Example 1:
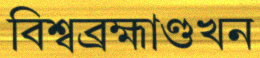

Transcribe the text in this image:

বিশ্বব্ৰহ্মাণ্ডখন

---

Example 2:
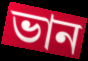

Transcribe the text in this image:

ভান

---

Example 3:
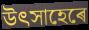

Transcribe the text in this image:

উৎসাহেৰে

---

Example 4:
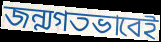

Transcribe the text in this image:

জন্মগতভাবেই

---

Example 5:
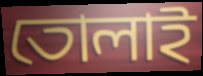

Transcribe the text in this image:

তোলাই